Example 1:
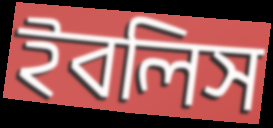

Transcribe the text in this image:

ইবলিস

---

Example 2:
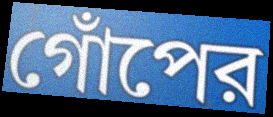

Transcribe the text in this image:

গোঁপের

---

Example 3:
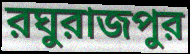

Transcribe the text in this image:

রঘুরাজপুর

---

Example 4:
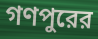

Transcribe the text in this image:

গণপুরের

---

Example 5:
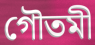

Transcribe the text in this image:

গৌতমী